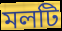
মলটি